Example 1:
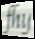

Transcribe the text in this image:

fhy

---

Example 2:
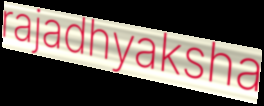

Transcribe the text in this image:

rajadhyaksha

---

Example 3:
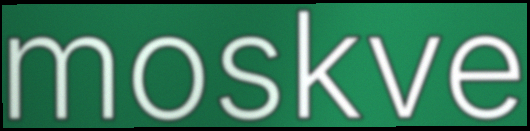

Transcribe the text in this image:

moskve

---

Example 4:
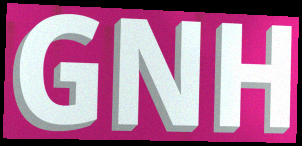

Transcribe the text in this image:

GNH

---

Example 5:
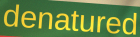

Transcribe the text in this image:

denatured